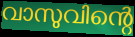
വാസുവിന്റെ